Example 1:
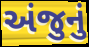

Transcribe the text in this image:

અંજુનું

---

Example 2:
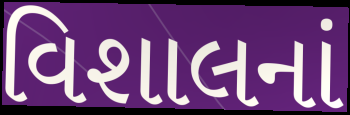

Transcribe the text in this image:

વિશાલનાં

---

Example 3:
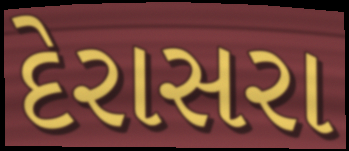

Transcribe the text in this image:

દેરાસરા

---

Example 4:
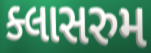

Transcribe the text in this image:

ક્લાસરુમ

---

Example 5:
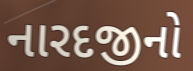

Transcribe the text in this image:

નારદજીનો